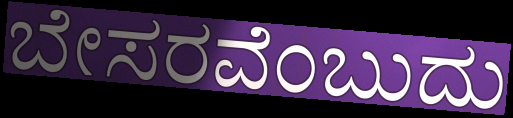
ಬೇಸರವೆಂಬುದು